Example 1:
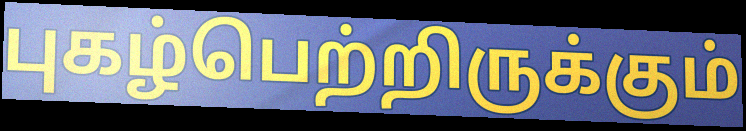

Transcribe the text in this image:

புகழ்பெற்றிருக்கும்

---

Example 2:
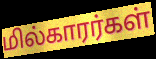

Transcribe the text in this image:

மில்காரர்கள்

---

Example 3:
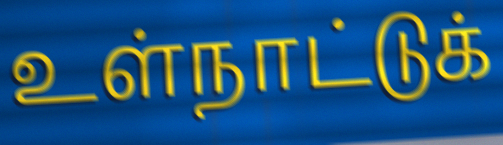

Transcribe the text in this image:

உள்நாட்டுக்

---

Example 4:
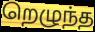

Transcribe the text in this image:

றெழுந்த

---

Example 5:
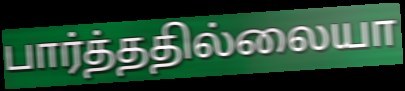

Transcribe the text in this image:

பார்த்ததில்லையா